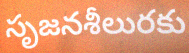
సృజనశీలురకు